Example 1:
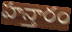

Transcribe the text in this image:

హన్తారం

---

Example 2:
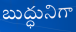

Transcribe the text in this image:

బుద్ధునిగా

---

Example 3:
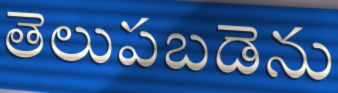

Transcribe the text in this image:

తెలుపబడెను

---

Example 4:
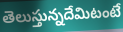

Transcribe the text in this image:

తెలుస్తున్నదేమిటంటే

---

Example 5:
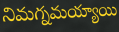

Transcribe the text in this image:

నిమగ్నమయ్యాయి